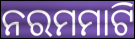
ନରମମାଟି